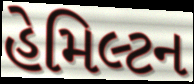
હેમિલ્ટન